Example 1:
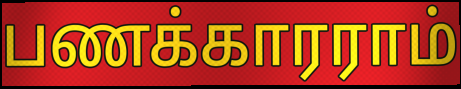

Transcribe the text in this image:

பணக்காரராம்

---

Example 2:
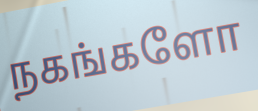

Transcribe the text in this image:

நகங்களோ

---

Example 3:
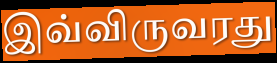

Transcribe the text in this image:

இவ்விருவரது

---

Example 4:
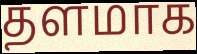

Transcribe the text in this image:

தளமாக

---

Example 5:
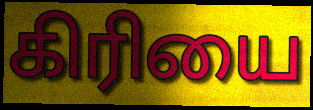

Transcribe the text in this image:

கிரியை